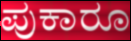
ಪುಕಾರೂ